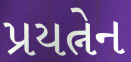
પ્રયત્નેન